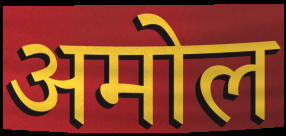
अमोल